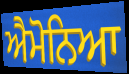
ਐਮੋਨਿਆ